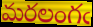
మరలంగఁ